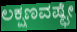
ಲಕ್ಷಣವಷ್ಟೇ